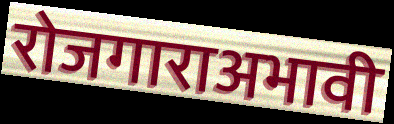
रोजगाराअभावी